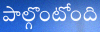
పాల్గొంటోంది